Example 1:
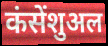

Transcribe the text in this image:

कंसेंशुअल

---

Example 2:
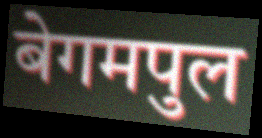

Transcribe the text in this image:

बेगमपुल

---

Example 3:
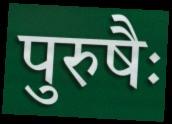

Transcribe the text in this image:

पुरुषैः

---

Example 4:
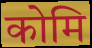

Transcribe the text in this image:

कोमि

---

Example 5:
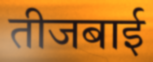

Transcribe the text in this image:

तीजबाई